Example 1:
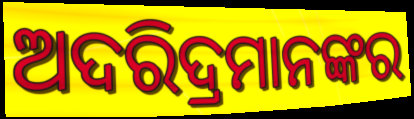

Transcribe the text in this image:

ଅଦରିଦ୍ରମାନଙ୍କର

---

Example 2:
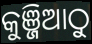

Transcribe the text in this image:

କୁଞ୍ଜିଆଠୁ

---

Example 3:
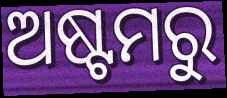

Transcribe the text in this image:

ଅଷ୍ଟମରୁ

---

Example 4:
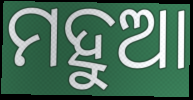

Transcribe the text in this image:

ମହୁଆ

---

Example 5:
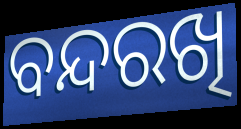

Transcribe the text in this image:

ବନ୍ଦରଖି